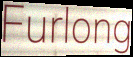
Furlong